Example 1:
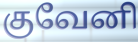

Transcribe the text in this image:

குவேனி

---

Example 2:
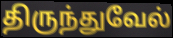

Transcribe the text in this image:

திருந்துவேல்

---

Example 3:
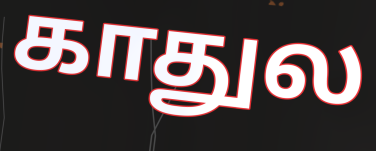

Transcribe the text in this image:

காதுல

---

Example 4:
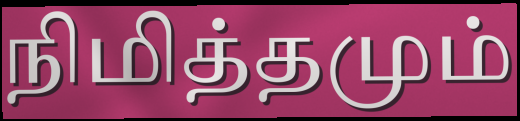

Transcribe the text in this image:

நிமித்தமும்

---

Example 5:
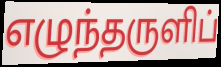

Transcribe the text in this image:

எழுந்தருளிப்